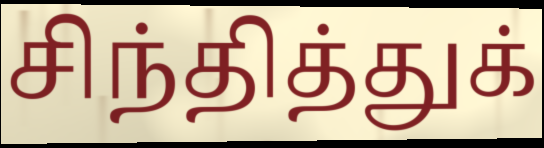
சிந்தித்துக்